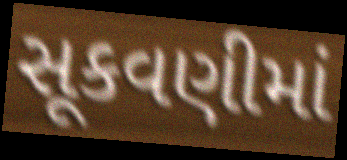
સૂકવણીમાં